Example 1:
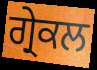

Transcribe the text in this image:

ਗ੍ਰੇਕਲ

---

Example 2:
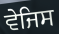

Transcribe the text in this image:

ਵੇਜਿਸ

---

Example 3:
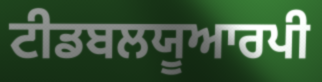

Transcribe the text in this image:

ਟੀਡਬਲਯੂਆਰਪੀ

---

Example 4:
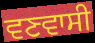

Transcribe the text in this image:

ਵਣਵਾਸੀ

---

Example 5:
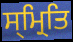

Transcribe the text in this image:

ਸ੍ਮ੍ਰਿਤਿ